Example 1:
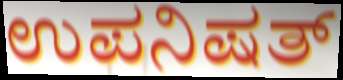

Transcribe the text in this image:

ಉಪನಿಷತ್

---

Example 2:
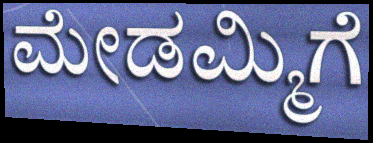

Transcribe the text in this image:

ಮೇಡಮ್ಮಿಗೆ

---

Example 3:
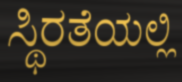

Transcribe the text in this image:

ಸ್ಥಿರತೆಯಲ್ಲಿ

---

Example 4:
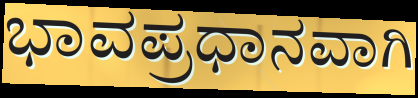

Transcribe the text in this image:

ಭಾವಪ್ರಧಾನವಾಗಿ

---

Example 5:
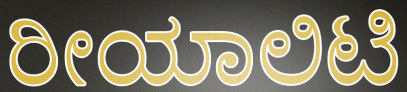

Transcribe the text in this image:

ರೀಯಾಲಿಟಿ